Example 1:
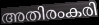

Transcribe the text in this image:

അതിരംകരി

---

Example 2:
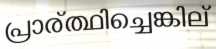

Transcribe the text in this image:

പ്രാര്ത്ഥിച്ചെങ്കില്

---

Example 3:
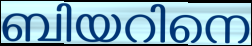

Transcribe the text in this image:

ബിയറിനെ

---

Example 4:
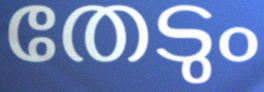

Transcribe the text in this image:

തേടും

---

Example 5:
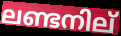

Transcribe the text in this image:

ലണ്ടനില്